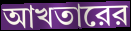
আখতারের